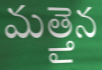
మత్తైన